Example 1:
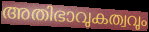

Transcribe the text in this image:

അതിഭാവുകത്വവും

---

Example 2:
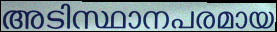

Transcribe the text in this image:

അടിസ്ഥാനപരമായ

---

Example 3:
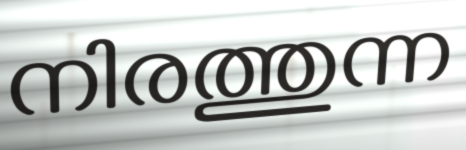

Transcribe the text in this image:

നിരത്തുന്ന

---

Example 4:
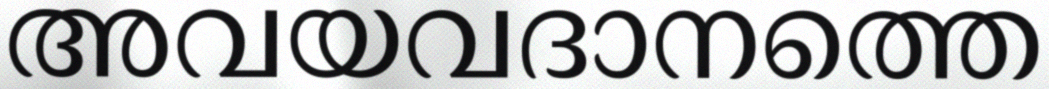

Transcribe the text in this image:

അവയവദാനത്തെ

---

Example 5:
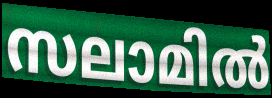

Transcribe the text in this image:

സലാമിൽ